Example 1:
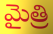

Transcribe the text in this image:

మైత్రి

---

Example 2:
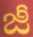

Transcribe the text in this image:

జీ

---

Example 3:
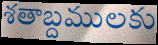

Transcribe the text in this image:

శతాబ్దములకు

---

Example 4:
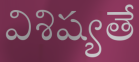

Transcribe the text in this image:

విశిష్యతే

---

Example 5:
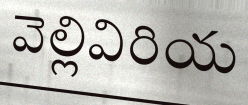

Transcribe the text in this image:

వెల్లివిరియ